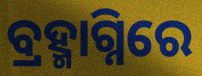
ବ୍ରହ୍ମାଗ୍ନିରେ